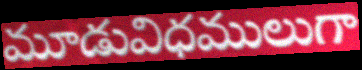
మూడువిధములుగా